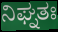
ನಿಘ್ನತಃ